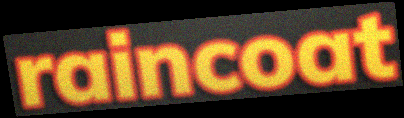
raincoat